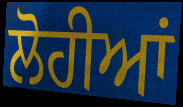
ਲੋਹੀਆਂ